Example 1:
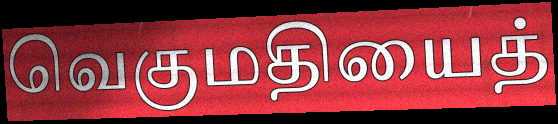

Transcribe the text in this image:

வெகுமதியைத்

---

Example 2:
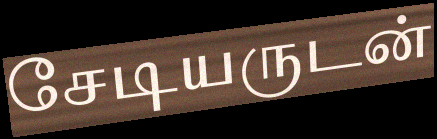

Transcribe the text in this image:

சேடியருடன்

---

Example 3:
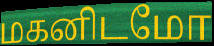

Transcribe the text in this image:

மகனிடமோ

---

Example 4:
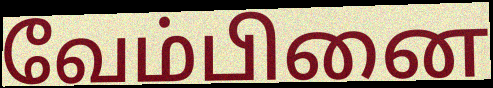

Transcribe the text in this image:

வேம்பினை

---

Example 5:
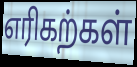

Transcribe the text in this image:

எரிகற்கள்